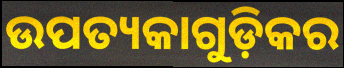
ଉପତ୍ୟକାଗୁଡ଼ିକର